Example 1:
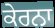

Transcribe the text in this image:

ਕੇਰਨਾ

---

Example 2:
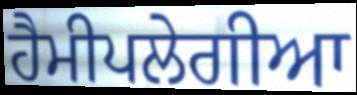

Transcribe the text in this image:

ਹੈਮੀਪਲੇਗੀਆ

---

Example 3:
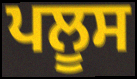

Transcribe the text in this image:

ਪਲੂਸ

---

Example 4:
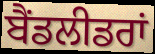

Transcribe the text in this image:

ਬੈਂਡਲੀਡਰਾਂ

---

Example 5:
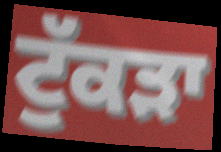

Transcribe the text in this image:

ਟੁੱਕੜਾ